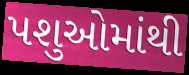
પશુઓમાંથી